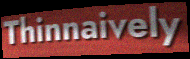
Thinnaively